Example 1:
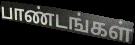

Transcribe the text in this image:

பாண்டங்கள்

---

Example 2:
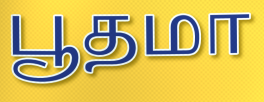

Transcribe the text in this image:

பூதமா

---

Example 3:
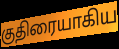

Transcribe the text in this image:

குதிரையாகிய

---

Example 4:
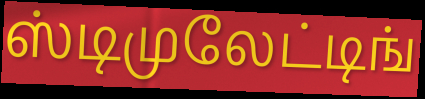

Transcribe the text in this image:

ஸ்டிமுலேட்டிங்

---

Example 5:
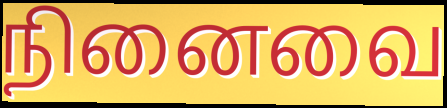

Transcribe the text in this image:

நினைவை